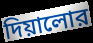
দিয়ালোর